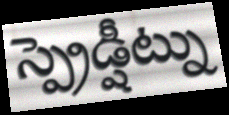
స్ప్రెడ్షీట్ను